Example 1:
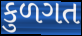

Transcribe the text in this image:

કુળગત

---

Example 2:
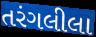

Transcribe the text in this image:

તરંગલીલા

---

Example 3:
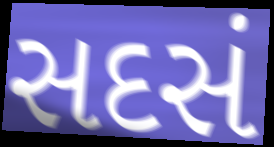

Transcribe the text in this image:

સદસં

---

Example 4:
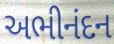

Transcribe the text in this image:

અભીનંદન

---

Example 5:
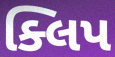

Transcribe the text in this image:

ક્લિપ